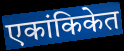
एकांकिकेत